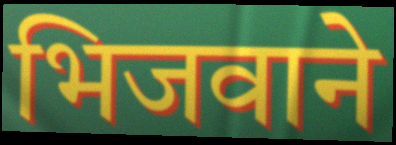
भिजवाने